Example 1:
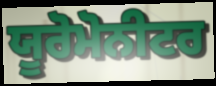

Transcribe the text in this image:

ਯੂਰੋਮੋਨੀਟਰ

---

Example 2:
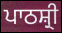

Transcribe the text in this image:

ਪਾਠਸ਼੍ਰੀ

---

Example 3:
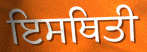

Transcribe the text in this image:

ਇਸਥਿਤੀ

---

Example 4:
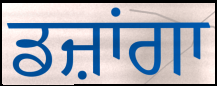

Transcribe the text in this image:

ਡਜ਼ਾਂਗਾ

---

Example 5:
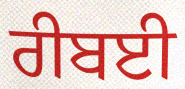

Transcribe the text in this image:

ਰੀਬਈ